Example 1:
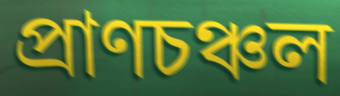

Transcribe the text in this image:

প্ৰাণচঞ্চল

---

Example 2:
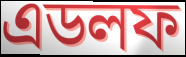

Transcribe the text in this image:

এডলফ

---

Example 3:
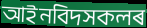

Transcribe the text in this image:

আইনবিদসকলৰ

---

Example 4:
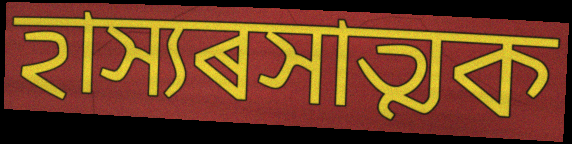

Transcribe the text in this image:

হাস্যৰসাত্মক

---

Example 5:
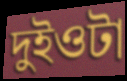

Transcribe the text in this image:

দুইওটা